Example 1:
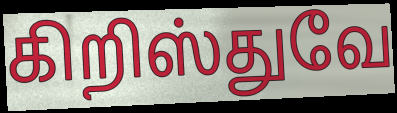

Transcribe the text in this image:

கிறிஸ்துவே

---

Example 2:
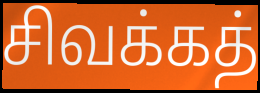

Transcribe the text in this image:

சிவக்கத்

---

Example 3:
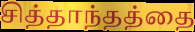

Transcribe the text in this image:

சித்தாந்தத்தை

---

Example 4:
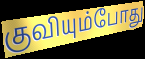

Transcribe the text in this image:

குவியும்போது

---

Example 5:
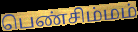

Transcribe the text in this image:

பெண்சிம்மம்